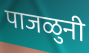
पाजळुनी